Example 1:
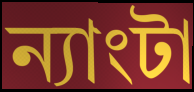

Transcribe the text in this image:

ন্যাংটা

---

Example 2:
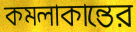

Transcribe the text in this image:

কমলাকান্তের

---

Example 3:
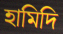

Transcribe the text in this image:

হামিদি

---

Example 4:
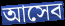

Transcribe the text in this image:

আসেব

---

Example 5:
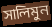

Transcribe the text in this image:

সালিমুন